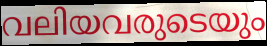
വലിയവരുടെയും